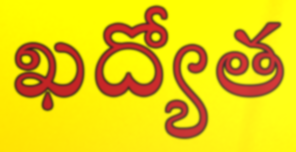
ఖద్యోత